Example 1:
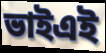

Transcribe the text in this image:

ভাইএই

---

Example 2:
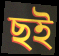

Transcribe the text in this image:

ছই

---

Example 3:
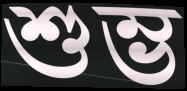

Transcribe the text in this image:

শুম্ভ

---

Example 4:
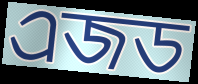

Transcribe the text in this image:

এজড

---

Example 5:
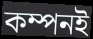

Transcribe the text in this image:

কম্পনই